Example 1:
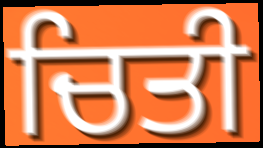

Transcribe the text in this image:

ਚਿਤੀ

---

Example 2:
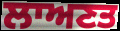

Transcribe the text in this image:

ਲਾਅਣਤ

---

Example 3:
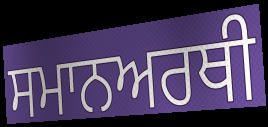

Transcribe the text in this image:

ਸਮਾਨਅਰਥੀ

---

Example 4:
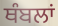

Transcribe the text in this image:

ਥੰਬਲਾਂ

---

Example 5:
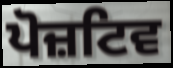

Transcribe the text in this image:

ਪੋਜ਼ਟਿਵ